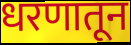
धरणातून